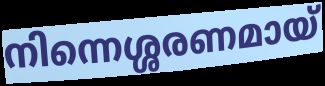
നിന്നെശ്ശരണമായ്